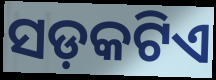
ସଡ଼କଟିଏ